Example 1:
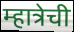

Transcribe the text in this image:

म्हात्रेची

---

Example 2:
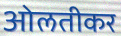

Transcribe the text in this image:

ओलतीकर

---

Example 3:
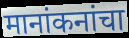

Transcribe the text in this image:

मानांकनांचा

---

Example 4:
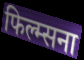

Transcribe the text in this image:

फिल्म्सना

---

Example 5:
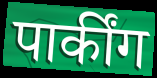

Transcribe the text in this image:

पार्कींग